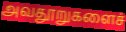
அவதூறுகளைச்